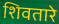
शिवतारे